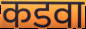
कडवा